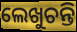
ଲେଖୁଚନ୍ତି